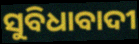
ସୁବିଧାବାଦୀ